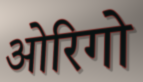
ओरिगो